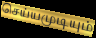
செய்யமுடியும்